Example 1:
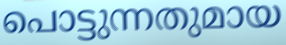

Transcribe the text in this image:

പൊട്ടുന്നതുമായ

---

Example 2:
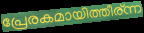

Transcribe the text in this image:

പ്രേരകമായിത്തീര്ന്ന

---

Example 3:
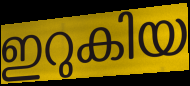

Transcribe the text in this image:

ഇറുകിയ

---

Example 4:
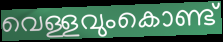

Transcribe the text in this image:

വെള്ളവുംകൊണ്ട്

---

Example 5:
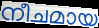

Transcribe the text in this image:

നീചമായ